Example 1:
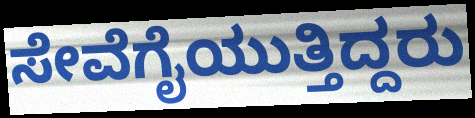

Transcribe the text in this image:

ಸೇವೆಗೈಯುತ್ತಿದ್ದರು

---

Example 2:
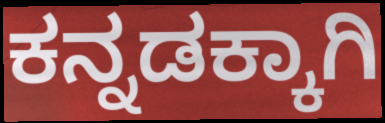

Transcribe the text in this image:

ಕನ್ನಡಕ್ಕಾಗಿ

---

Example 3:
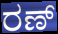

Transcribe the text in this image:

ರಣ್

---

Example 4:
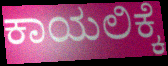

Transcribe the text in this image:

ಕಾಯಲಿಕ್ಕೆ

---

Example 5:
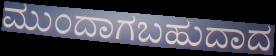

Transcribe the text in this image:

ಮುಂದಾಗಬಹುದಾದ